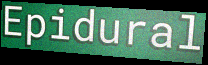
Epidural